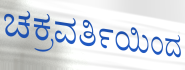
ಚಕ್ರವರ್ತಿಯಿಂದ